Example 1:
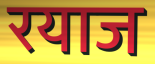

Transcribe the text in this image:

रयाज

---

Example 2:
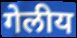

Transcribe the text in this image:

गेलीय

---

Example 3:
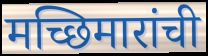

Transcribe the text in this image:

मच्छिमारांची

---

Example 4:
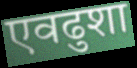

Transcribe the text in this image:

एवढुशा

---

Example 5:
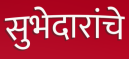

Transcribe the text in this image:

सुभेदारांचे